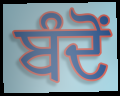
ਬੰਦੋਂ